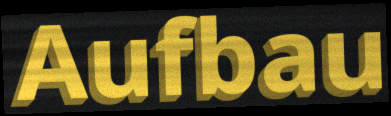
Aufbau